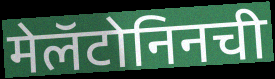
मेलॅटोनिनची